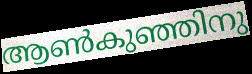
ആൺകുഞ്ഞിനു